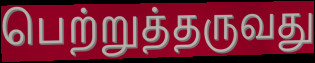
பெற்றுத்தருவது